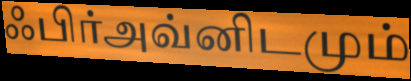
ஃபிர்அவ்னிடமும்